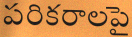
పరికరాలపై